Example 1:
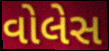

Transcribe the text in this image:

વોલેસ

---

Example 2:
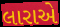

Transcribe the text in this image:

લારાએ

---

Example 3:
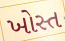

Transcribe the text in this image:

ખોસ્ત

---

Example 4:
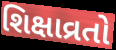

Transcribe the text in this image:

શિક્ષાવ્રતો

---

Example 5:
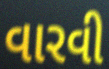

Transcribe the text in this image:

વારવી